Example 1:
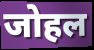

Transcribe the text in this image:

जोहल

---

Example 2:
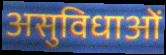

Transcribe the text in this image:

असुविधाओं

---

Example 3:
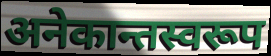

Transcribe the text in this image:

अनेकान्तस्वरूप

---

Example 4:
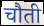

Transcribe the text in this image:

चौती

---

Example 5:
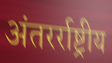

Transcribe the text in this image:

अंतरर्राष्ट्रीय